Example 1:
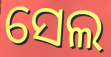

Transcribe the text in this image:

ସେଲ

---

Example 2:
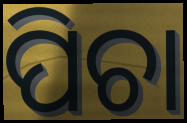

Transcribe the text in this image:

ପିଚା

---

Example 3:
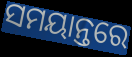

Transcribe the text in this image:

ସମୟାନ୍ତରେ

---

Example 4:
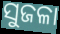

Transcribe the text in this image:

ସୁଜଳା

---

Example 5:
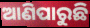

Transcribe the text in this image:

ଆଣିପାରୁଛି